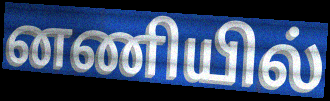
னணியில்